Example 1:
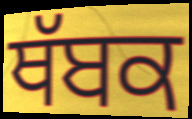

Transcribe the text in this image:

ਥੱਬਕ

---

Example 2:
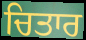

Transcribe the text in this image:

ਚਿਤਾਰ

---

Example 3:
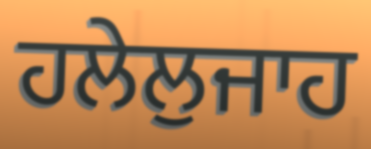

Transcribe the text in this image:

ਹਲੇਲੁਜਾਹ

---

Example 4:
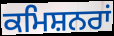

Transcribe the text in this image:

ਕਮਿਸ਼ਨਰਾਂ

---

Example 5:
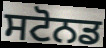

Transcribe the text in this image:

ਸਟੋਨਡ